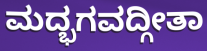
ಮದ್ಭಗವದ್ಗೀತಾ